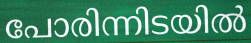
പോരിന്നിടയിൽ